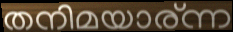
തനിമയാര്ന്ന